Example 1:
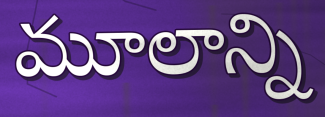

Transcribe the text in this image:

మూలాన్ని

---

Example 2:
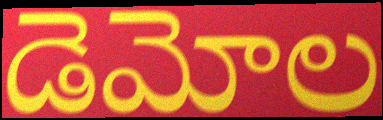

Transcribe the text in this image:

డెమోల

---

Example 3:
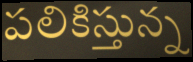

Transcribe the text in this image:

పలికిస్తున్న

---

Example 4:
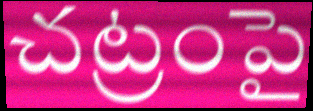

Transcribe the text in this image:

చట్రంపై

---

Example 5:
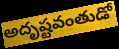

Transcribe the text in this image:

అదృష్టవంతుడో